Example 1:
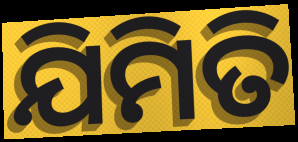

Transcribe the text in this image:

ଯିମିତି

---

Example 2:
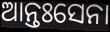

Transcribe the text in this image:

ଆନ୍ତଃସେନା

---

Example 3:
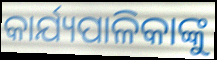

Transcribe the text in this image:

କାର୍ଯ୍ୟପାଳିକାଙ୍କୁ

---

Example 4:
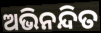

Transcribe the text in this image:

ଅଭିନନ୍ଦିତ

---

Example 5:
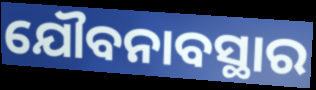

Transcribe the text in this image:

ଯୌବନାବସ୍ଥାର